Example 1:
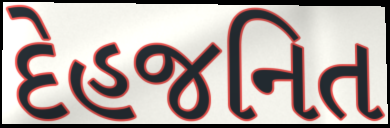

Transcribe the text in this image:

દેહજનિત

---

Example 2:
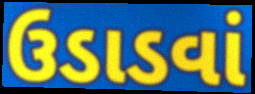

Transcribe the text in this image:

ઉડાડવાં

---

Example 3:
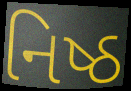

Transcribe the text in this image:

નિષ્ઠ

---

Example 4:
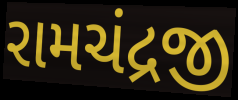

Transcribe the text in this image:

રામચંદ્રજી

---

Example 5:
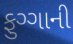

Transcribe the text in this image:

ફુગ્ગાની